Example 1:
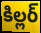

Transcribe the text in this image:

కిల్లర్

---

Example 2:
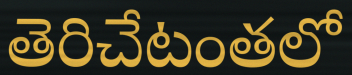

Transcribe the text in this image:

తెరిచేటంతలో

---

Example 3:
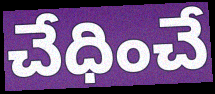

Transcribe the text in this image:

చేధించే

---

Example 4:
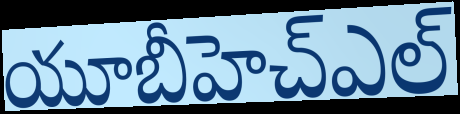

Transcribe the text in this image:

యూబీహెచ్ఎల్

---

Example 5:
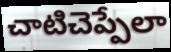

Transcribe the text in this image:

చాటిచెప్పేలా